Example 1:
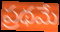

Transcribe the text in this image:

ప్రథమే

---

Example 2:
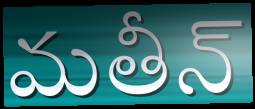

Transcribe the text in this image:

మతీన్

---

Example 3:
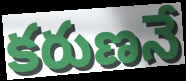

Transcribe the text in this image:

కరుణనే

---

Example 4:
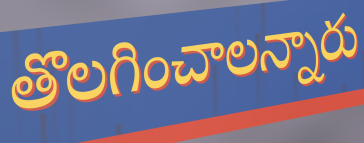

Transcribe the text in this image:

తొలగించాలన్నారు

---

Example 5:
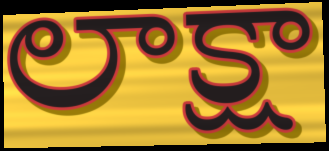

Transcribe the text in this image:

లాక్షా